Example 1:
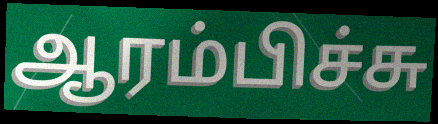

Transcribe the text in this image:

ஆரம்பிச்சு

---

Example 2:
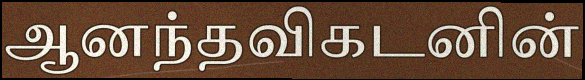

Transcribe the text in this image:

ஆனந்தவிகடனின்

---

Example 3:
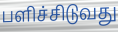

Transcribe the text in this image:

பளிச்சிடுவது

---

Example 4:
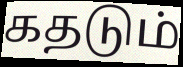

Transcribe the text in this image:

கதடும்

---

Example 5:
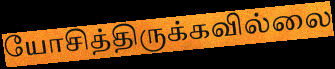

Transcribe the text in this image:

யோசித்திருக்கவில்லை